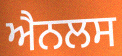
ਐਨਲਸ